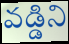
వడ్డిని